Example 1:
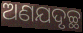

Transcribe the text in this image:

ଅଣଯଦୃଚ୍ଛ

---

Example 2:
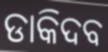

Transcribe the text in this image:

ଡାକିଦବ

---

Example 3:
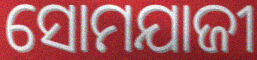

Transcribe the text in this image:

ସୋମଯାଜୀ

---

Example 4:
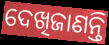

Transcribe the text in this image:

ଦେଖିଜାଣନ୍ତି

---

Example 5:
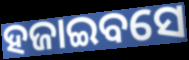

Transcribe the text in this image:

ହଜାଇବସେ